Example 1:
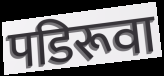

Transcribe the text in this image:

पडिरूवा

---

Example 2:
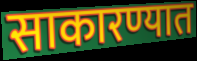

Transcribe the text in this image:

साकारण्यात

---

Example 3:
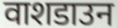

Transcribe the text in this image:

वाशडाउन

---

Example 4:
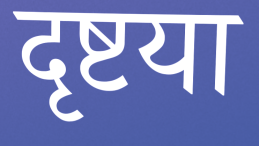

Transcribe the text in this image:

दृष्टया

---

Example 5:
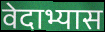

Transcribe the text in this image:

वेदाभ्यास